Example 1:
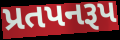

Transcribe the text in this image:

પ્રતપનરૂપ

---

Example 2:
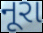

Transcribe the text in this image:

નૂરા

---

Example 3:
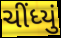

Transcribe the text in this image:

ચીંધ્યું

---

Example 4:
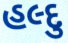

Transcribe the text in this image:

હલ્દુ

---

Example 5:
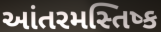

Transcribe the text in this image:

આંતરમસ્તિષ્ક